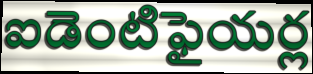
ఐడెంటిఫైయర్ల